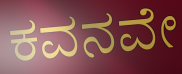
ಕವನವೇ